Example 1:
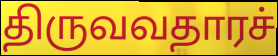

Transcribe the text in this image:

திருவவதாரச்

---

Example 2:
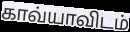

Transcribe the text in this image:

காவ்யாவிடம்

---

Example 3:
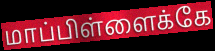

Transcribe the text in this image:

மாப்பிள்ளைக்கே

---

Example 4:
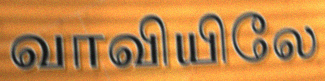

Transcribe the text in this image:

வாவியிலே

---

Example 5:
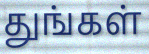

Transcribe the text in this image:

துங்கள்